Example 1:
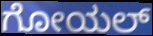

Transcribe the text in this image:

ಗೋಯಲ್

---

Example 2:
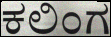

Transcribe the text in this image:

ಕಲಿಂಗ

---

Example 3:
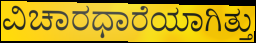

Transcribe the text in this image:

ವಿಚಾರಧಾರೆಯಾಗಿತ್ತು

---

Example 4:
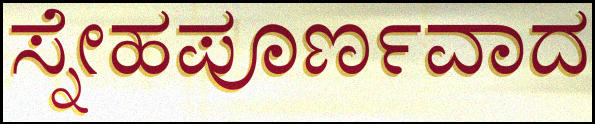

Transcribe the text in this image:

ಸ್ನೇಹಪೂರ್ಣವಾದ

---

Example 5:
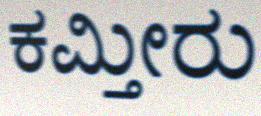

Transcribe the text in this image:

ಕಮ್ತೀರು